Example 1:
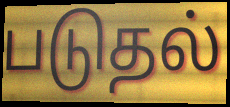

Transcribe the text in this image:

படுதல்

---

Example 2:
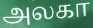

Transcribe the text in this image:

அலகா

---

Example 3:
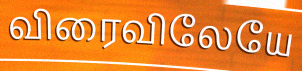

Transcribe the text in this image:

விரைவிலேயே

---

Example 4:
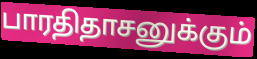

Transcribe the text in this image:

பாரதிதாசனுக்கும்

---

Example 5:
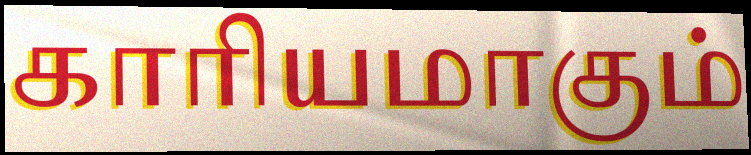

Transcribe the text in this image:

காரியமாகும்